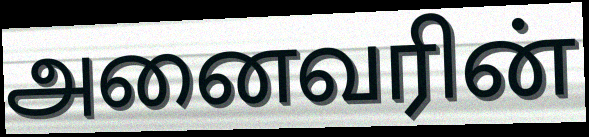
அனைவரின்